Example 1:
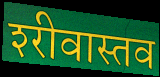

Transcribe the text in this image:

श्रीवास्तव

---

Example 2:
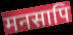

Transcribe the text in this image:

मनसापि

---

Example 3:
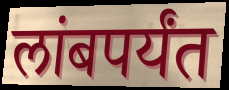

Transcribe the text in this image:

लांबपर्यंत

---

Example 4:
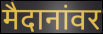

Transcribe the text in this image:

मैदानांवर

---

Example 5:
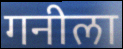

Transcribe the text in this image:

गनीला